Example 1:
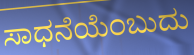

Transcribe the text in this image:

ಸಾಧನೆಯೆಂಬುದು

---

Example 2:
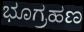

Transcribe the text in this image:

ಭೂಗ್ರಹಣ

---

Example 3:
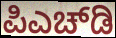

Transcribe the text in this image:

ಪಿಎಚ್‌ಡಿ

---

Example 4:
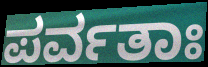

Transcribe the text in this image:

ಪರ್ವತಾಃ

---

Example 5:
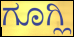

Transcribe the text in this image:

ಗೂಗ್ಲಿ